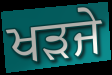
ਖੜਜੇ